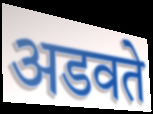
अडवते